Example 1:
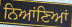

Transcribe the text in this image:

ਨਿਆਂਣਿਆਂ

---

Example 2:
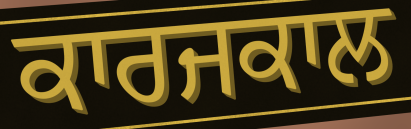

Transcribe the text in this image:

ਕਾਰਜਕਾਲ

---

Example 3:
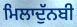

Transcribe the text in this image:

ਮਿਲਾਦੁੱਨਬੀ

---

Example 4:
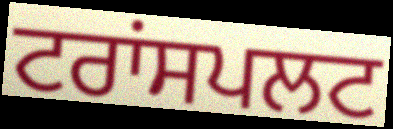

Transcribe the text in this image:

ਟਰਾਂਸਪਲਟ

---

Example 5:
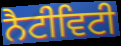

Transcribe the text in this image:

ਨੈਟੀਵਿਟੀ